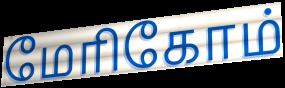
மேரிகோம்